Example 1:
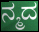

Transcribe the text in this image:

ನ್ಮದ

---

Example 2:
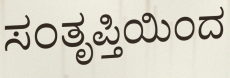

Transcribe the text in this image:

ಸಂತೃಪ್ತಿಯಿಂದ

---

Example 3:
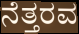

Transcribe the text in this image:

ನೆತ್ತರವ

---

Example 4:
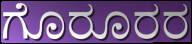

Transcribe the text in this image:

ಗೊರೂರರ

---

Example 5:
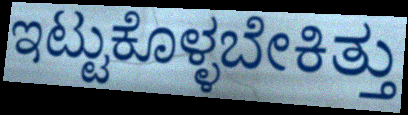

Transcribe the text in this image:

ಇಟ್ಟುಕೊಳ್ಳಬೇಕಿತ್ತು